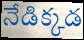
నేడిక్కడ